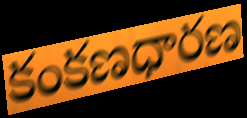
కంకణధారణ